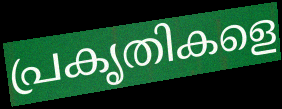
പ്രകൃതികളെ